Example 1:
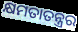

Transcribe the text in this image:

କ୍ଷମତାତନ୍ତ୍ରର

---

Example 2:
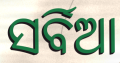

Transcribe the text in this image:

ସର୍ବିଆ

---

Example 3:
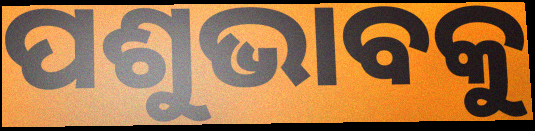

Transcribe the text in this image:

ପଶୁଭାବକୁ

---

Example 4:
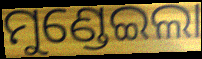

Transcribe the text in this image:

ମୁଣ୍ଡେଇଲା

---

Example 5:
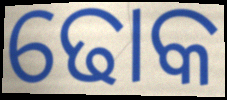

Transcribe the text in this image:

ଢୋକ